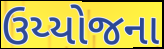
ઉય્યોજના